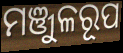
ମଞ୍ଜୁଳରୂପ